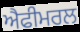
ਐਫੀਮਰਲ